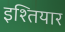
इश्तियार